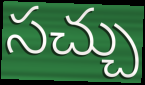
సచ్చు